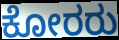
ಕೋರರು